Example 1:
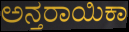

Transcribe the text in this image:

ಅನ್ತರಾಯಿಕಾ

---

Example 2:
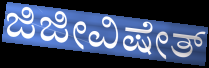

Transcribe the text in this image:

ಜಿಜೀವಿಷೇತ್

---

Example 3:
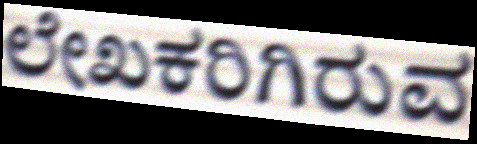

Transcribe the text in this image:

ಲೇಖಕರಿಗಿರುವ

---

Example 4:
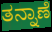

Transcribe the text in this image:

ತನ್ನಾಣೆ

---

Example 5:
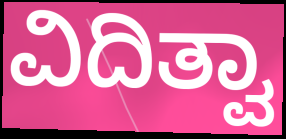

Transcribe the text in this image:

ವಿದಿತ್ವಾ